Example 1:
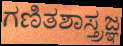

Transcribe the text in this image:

ಗಣಿತಶಾಸ್ತ್ರಜ್ಞ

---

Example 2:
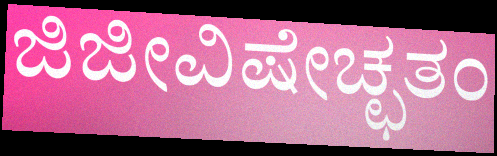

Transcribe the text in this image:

ಜಿಜೀವಿಷೇಚ್ಛತಂ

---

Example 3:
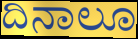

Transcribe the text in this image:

ದಿನಾಲೂ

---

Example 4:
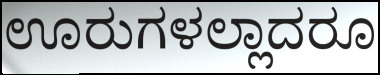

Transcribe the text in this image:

ಊರುಗಳಲ್ಲಾದರೂ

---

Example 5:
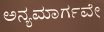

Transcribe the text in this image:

ಅನ್ಯಮಾರ್ಗವೇ